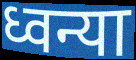
ध्वन्या